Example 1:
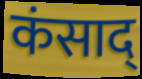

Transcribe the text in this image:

कंसाद्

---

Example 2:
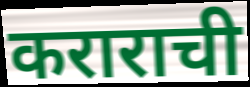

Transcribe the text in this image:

कराराची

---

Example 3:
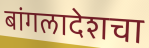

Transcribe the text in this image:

बांगलादेशचा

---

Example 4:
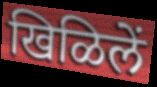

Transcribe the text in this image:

खिळिलें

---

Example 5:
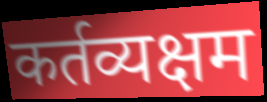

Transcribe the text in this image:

कर्तव्यक्षम